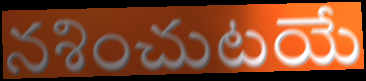
నశించుటయే